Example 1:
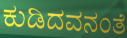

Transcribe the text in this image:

ಕುಡಿದವನಂತೆ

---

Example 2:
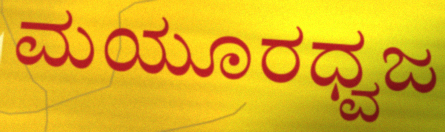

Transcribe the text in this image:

ಮಯೂರಧ್ವಜ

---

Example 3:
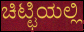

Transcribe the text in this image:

ಚಿಟ್ಟಿಯಲ್ಲಿ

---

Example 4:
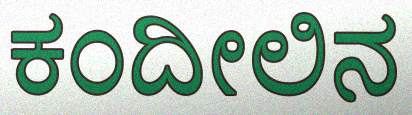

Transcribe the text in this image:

ಕಂದೀಲಿನ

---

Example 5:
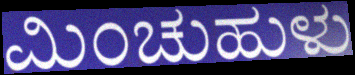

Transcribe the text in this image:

ಮಿಂಚುಹುಳು